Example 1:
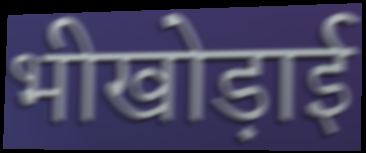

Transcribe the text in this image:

भीखोड़ाई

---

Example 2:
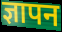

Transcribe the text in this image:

ज्ञापन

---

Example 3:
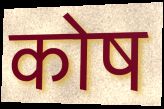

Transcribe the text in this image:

कोष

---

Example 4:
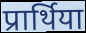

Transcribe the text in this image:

प्रार्थिया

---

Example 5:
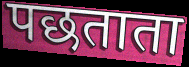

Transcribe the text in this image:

पछताता